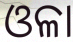
ଓଳା